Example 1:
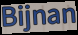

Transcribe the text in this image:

Bijnan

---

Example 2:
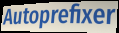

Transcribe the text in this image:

Autoprefixer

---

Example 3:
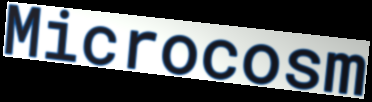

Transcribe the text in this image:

Microcosm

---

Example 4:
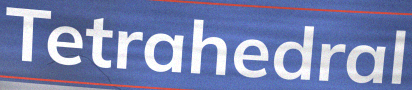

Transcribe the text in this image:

Tetrahedral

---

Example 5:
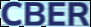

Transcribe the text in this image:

CBER